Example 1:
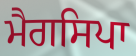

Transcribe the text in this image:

ਮੈਗਸਿਪਾ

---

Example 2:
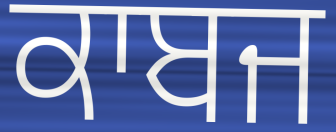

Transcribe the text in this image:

ਕਾਬਜ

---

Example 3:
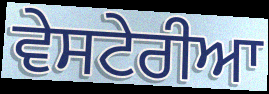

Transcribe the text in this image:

ਵੇਸਟੇਰੀਆ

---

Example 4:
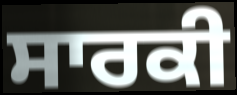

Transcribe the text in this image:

ਸਾਰਕੀ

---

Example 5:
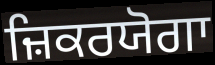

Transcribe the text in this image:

ਜ਼ਿਕਰਯੋਗਾ